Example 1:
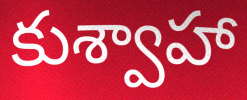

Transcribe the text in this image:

కుశ్వాహా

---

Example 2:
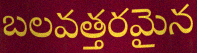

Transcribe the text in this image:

బలవత్తరమైన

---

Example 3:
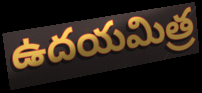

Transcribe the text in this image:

ఉదయమిత్ర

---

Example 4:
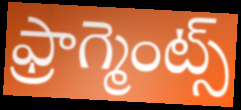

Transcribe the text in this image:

ఫ్రాగ్మెంట్స్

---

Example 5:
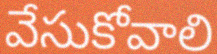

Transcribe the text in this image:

వేసుకోవాలి